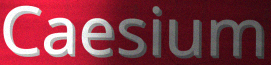
Caesium